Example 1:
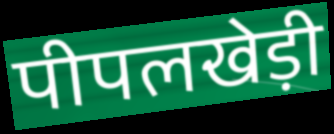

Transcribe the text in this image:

पीपलखेड़ी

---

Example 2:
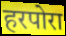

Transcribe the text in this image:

हरपोरा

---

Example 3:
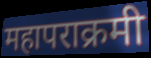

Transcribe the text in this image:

महापराक्रमी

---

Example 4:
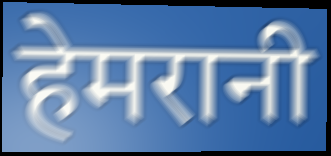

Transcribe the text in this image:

हेमरानी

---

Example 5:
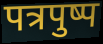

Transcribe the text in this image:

पत्रपुष्प